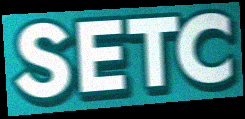
SETC